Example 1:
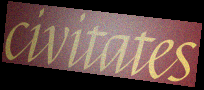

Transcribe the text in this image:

civitates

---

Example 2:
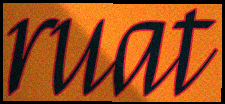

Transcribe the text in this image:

ruat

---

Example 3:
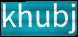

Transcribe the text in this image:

khubj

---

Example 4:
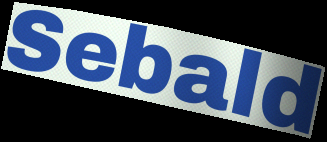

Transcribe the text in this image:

Sebald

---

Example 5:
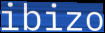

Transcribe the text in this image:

ibizo